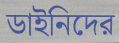
ডাইনিদের